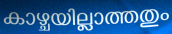
കാഴ്ചയില്ലാത്തതും